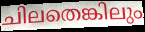
ചിലതെങ്കിലും